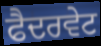
ਫੈਦਰਵੇਟ